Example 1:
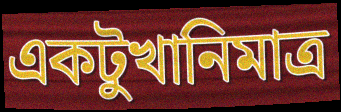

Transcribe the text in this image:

একটুখানিমাত্র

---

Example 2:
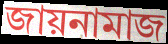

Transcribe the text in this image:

জায়নামাজ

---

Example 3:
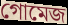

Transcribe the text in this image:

গোমেজ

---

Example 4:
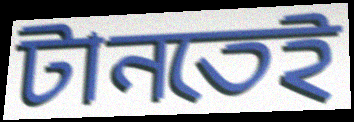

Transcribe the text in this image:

টানতেই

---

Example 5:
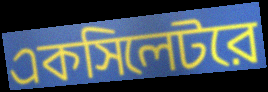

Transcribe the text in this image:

একসিলেটরে